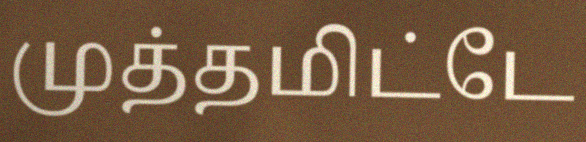
முத்தமிட்டே